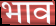
भाव